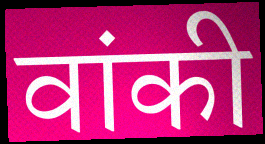
वांकी